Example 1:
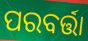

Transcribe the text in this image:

ପରବର୍ତ୍ତା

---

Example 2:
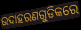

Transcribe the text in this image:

ଉଦାହରଣଗୁଡିକରେ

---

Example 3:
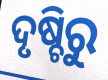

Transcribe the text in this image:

ଦୃଷ୍ଚିରୁ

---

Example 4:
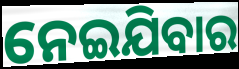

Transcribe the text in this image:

ନେଇଯିବାର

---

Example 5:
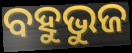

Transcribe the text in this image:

ବହୁଭୁଜ